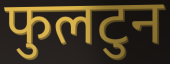
फुलटुन